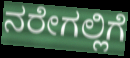
ನರೇಗಲ್ಲಿಗೆ